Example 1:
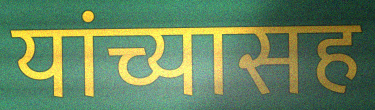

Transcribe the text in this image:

यांच्यासह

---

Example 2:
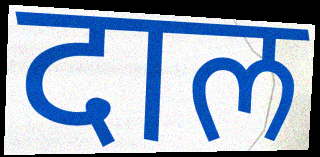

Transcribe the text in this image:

दाल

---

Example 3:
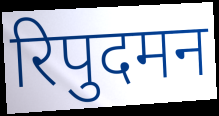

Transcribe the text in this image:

रिपुदमन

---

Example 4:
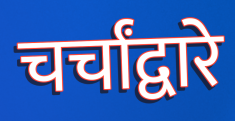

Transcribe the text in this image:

चर्चांद्वारे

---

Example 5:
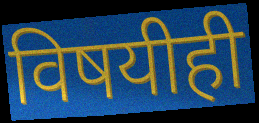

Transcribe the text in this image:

विषयीही